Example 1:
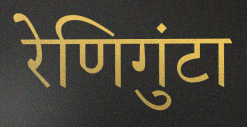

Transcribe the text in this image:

रेणिगुंटा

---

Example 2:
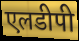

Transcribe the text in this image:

एलडीपी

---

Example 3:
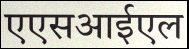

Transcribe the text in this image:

एएसआईएल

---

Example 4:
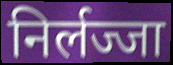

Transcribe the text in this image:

निर्लज्जा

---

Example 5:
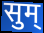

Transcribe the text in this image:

सुम्